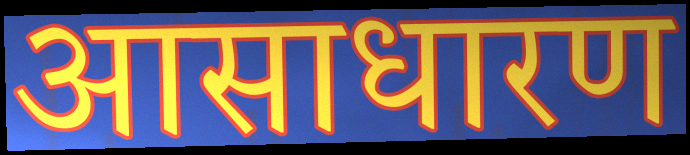
आसाधारण